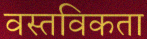
वस्तविकता